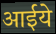
आईये